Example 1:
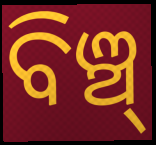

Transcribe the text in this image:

ବିଞ୍ଚ୍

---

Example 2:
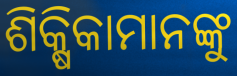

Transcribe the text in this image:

ଶିକ୍ଷିକାମାନଙ୍କୁ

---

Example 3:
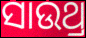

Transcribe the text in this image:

ସାଉଥ୍ର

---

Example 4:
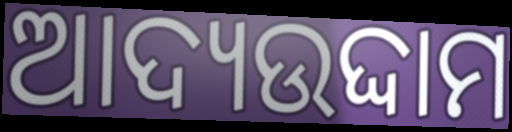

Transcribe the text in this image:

ଆଦ୍ୟଉଦ୍ଦାମ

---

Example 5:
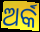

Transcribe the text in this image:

ଅର୍କ